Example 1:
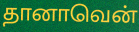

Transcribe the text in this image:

தானாவென்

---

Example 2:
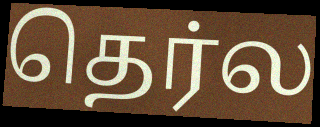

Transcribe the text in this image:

தெர்ல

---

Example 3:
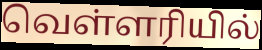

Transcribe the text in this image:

வெள்ளரியில்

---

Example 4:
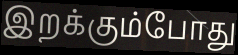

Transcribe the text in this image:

இறக்கும்போது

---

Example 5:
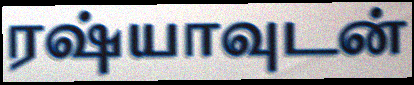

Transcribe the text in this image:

ரஷ்யாவுடன்